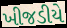
ખીજડીયે